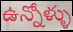
ఉన్నోళ్ళు